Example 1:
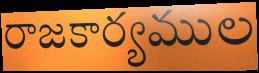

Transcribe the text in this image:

రాజకార్యముల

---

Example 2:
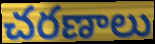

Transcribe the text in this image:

చరణాలు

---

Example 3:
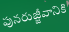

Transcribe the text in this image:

పునరుజ్జీవానికి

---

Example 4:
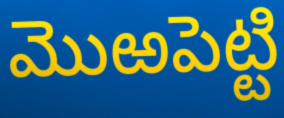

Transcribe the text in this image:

మొఱపెట్టి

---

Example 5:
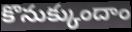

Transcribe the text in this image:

కొనుక్కుందాం